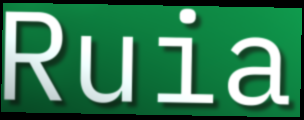
Ruia